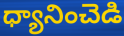
ధ్యానించెడి